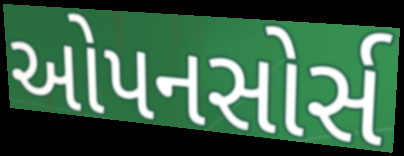
ઓપનસોર્સ